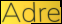
Adre